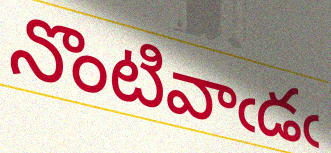
నొంటివాఁడఁ